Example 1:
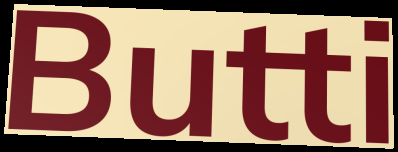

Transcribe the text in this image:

Butti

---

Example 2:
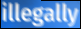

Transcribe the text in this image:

illegally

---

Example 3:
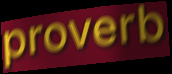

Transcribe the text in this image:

proverb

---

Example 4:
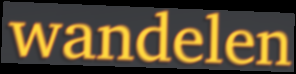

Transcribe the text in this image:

wandelen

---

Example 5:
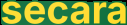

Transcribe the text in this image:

secara